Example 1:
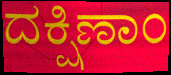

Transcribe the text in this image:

ದಕ್ಷಿಣಾಂ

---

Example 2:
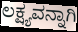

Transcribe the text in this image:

ಲಕ್ಷ್ಯವನ್ನಾಗಿ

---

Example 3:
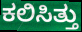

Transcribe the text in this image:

ಕಲಿಸಿತ್ತು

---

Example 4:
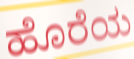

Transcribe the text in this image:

ಹೊರೆಯ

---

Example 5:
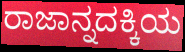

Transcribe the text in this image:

ರಾಜಾನ್ನದಕ್ಕಿಯ